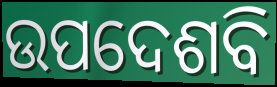
ଉପଦେଶବି